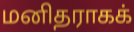
மனிதராகக்